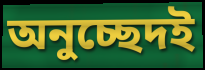
অনুচ্ছেদই